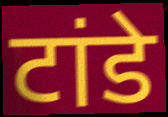
टांडे